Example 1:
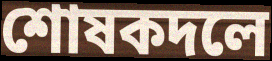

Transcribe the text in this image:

শোষকদলে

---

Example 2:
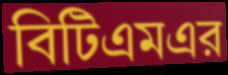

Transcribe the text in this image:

বিটিএমএর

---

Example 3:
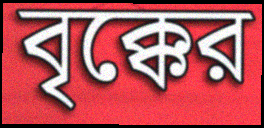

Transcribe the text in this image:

বৃক্কের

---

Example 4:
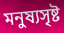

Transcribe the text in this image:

মনুষ্যসৃষ্ট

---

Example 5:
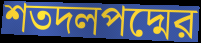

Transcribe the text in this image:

শতদলপদ্মের